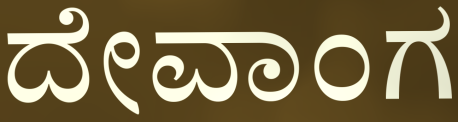
ದೇವಾಂಗ